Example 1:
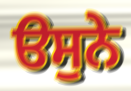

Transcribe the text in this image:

ੳਸੁਨੇ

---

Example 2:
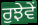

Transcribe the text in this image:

ਰੁਝੇਵੇਂ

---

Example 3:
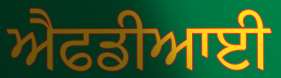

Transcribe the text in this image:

ਐਫਡੀਆਈ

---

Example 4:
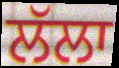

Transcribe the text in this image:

ਲੱਲਾ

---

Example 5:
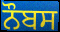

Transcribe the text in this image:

ਨੌਬਸ